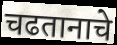
चढतानाचे